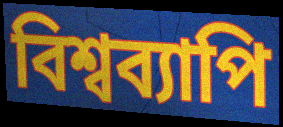
বিশ্বব্যাপি